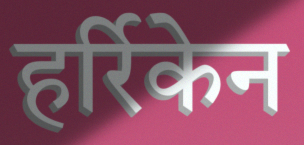
हर्रिकेन